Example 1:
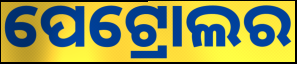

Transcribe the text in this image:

ପେଟ୍ରୋଲର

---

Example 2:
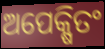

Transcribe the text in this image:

ଅପେକ୍ଷିତଂ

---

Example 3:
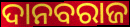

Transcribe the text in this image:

ଦାନବରାଜ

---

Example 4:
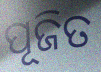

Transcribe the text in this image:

ପୂଜିତ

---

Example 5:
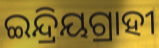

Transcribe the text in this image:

ଇନ୍ଦ୍ରିୟଗ୍ରାହୀ